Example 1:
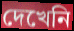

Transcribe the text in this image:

দেখেনি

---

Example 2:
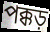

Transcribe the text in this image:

পক্কড়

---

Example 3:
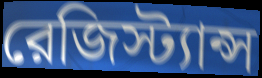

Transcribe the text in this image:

রেজিস্ট্যান্স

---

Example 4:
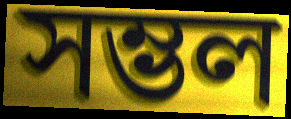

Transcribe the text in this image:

সম্ভল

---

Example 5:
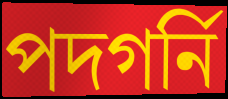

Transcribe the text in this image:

পদগর্নি